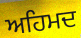
ਅਹਿਮਦ